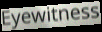
Eyewitness